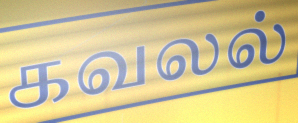
கவலல்